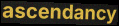
ascendancy